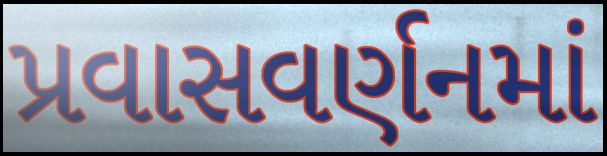
પ્રવાસવર્ણનમાં